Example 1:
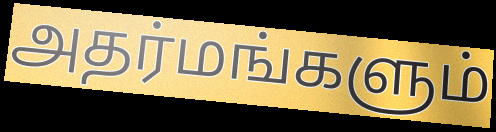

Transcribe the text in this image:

அதர்மங்களும்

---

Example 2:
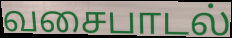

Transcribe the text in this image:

வசைபாடல்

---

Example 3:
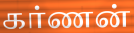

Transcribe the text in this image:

கர்ணன்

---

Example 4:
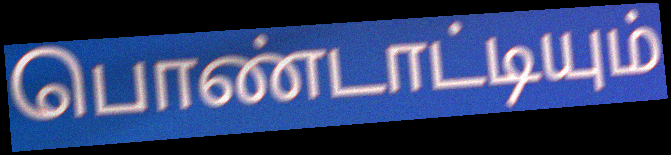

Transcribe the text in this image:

பொண்டாட்டியும்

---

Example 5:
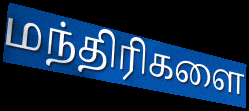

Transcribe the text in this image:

மந்திரிகளை